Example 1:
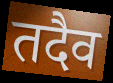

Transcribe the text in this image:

तदैव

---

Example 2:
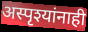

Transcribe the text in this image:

अस्पृश्यांनाही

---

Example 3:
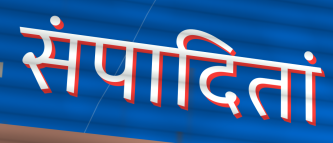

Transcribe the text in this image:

संपादितां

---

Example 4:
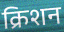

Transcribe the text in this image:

क्रिशन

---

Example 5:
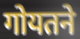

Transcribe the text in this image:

गोयतने